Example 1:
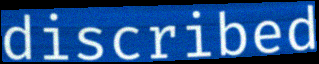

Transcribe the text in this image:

discribed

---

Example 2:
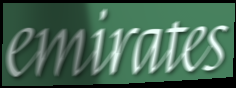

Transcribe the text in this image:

emirates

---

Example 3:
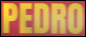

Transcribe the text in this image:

PEDRO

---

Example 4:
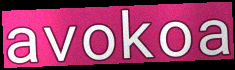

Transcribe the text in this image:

avokoa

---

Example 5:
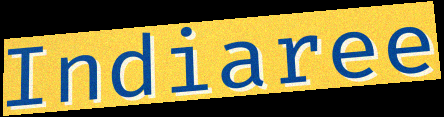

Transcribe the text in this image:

Indiaree